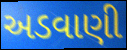
અડવાણી